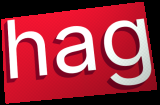
hag